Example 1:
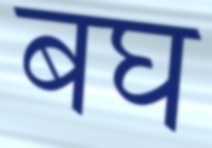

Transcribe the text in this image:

बघ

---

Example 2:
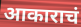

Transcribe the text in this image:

आकाराचं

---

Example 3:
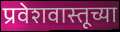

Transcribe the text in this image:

प्रवेशवास्तूच्या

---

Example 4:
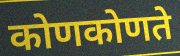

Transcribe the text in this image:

कोणकोणते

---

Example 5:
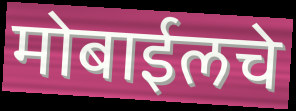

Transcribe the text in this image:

मोबाईलचे